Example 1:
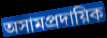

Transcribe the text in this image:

অসামপ্রদায়িক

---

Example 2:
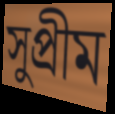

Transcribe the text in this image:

সুপ্রীম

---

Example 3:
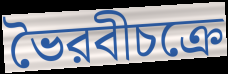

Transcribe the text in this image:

ভৈরবীচক্রে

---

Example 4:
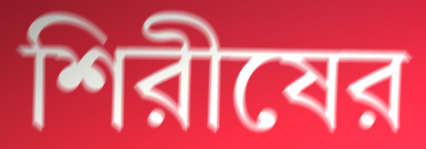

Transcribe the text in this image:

শিরীষের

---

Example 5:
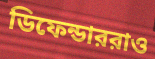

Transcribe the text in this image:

ডিফেন্ডাররাও